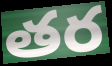
తర